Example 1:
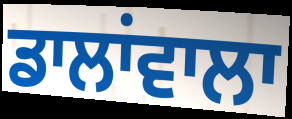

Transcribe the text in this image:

ਡਾਲਾਂਵਾਲਾ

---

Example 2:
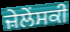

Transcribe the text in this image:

ਜ਼ੇਲੇਂਸਕੀ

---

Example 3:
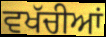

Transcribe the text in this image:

ਵਖੱਚੀਆਂ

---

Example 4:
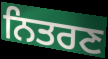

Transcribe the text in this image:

ਨਿਤਰਣ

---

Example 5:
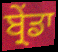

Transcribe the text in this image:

ਬ੍ਰੇਂਡਾ